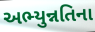
અભ્યુન્નતિના